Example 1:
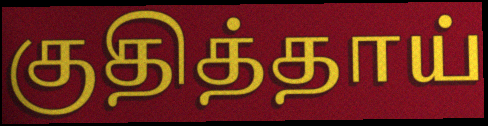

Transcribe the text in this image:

குதித்தாய்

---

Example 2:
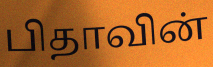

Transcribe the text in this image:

பிதாவின்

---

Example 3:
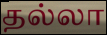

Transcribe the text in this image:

தல்லா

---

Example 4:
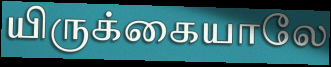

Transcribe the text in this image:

யிருக்கையாலே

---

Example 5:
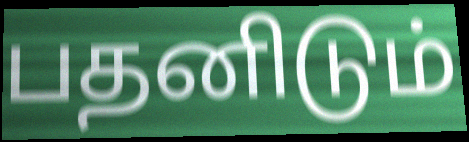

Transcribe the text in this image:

பதனிடும்